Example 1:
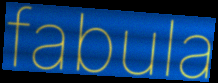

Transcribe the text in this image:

fabula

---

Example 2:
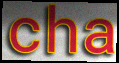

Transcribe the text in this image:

cha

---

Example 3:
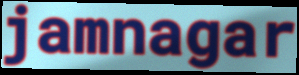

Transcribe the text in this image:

jamnagar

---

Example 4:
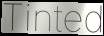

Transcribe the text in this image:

Tinted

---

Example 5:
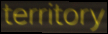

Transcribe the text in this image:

territory